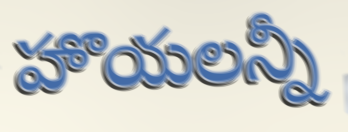
హొయలన్నీ